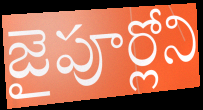
జైపూర్లోని